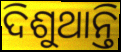
ଦିଶୁଥାନ୍ତି